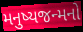
મનુષ્યજન્મનો